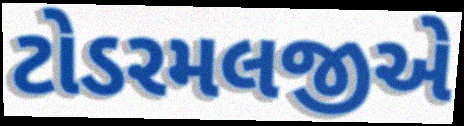
ટોડરમલજીએ